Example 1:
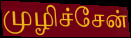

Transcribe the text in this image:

முழிச்சேன்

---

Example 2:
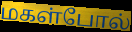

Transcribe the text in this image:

மகள்போல்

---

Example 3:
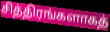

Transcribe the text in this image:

சித்திரங்களாகத்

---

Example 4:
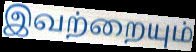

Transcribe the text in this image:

இவற்றையும்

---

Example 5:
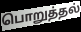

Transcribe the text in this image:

பொறுத்தல்